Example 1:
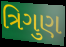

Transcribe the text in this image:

ત્રિગુણ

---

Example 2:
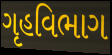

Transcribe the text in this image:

ગૃહવિભાગ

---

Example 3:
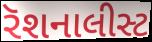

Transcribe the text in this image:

રૅશનાલીસ્ટ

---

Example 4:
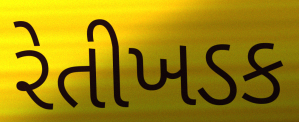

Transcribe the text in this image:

રેતીખડક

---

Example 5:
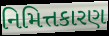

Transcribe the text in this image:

નિમિત્તકારણ